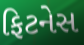
ફિટનેસ